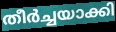
തീർച്ചയാക്കി